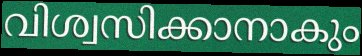
വിശ്വസിക്കാനാകും